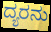
ದ್ಯರನು